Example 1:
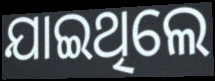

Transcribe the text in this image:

ଯାଇଥିଲେ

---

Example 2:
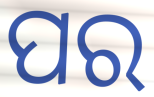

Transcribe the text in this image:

ପର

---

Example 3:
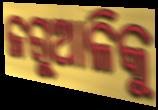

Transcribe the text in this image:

ଜଗୁଆଳିକୁ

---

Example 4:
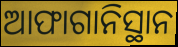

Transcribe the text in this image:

ଆଫାଗାନିସ୍ଥାନ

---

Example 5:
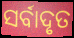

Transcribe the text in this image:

ସର୍ବାଦୃତ